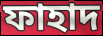
ফাহাদ